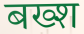
बख्श